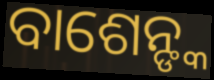
ବାଶେନ୍ଙ୍କ